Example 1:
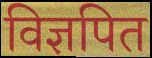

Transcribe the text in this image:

विज्ञपित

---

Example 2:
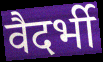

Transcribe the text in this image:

वैदर्भी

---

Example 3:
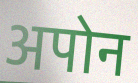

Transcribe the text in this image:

अपोन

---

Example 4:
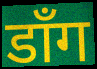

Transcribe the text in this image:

डाँग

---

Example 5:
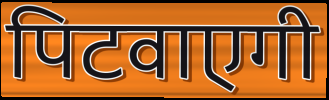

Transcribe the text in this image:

पिटवाएगी